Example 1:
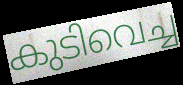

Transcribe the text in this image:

കുടിവെച്ച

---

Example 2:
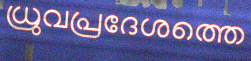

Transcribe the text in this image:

ധ്രുവപ്രദേശത്തെ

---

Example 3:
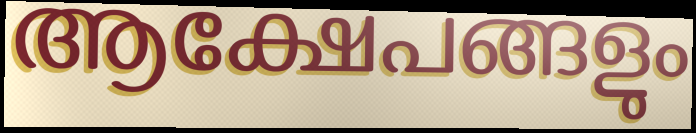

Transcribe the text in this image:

ആക്ഷേപങ്ങളും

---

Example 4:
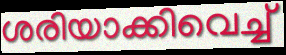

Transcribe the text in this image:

ശരിയാക്കിവെച്ച്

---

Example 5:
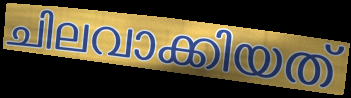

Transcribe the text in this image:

ചിലവാക്കിയത്